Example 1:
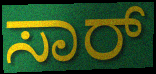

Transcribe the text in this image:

ಸಾರ್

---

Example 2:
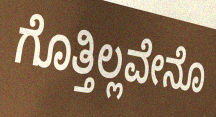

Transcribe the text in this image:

ಗೊತ್ತಿಲ್ಲವೇನೊ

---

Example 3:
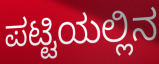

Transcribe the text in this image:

ಪಟ್ಟಿಯಲ್ಲಿನ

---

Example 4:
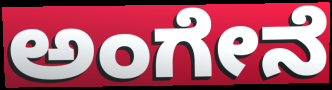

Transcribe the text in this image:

ಅಂಗೇನೆ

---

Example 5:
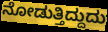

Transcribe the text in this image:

ನೋಡುತ್ತಿದ್ದುದು